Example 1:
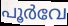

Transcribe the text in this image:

പൂർവേ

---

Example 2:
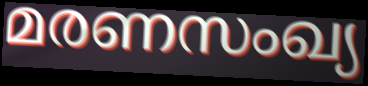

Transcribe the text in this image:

മരണസംഖ്യ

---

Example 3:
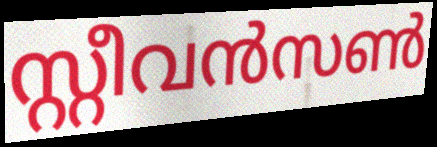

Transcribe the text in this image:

സ്റ്റീവൻസൺ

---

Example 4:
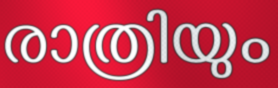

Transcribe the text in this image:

രാത്രിയും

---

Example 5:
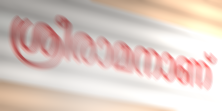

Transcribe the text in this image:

ശ്രീരാമനാണ്